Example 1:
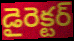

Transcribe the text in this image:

డైరెక్టర్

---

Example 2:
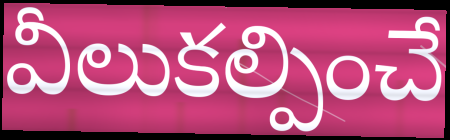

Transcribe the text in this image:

వీలుకల్పించే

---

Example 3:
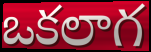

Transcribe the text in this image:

ఒకలాగ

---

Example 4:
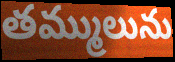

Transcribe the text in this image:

తమ్ములును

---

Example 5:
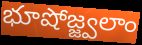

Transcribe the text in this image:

భూషోజ్జ్వలాం